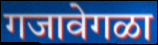
गजावेगळा